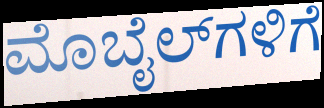
ಮೊಬೈಲ್‌ಗಳಿಗೆ